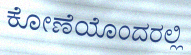
ಕೋಣೆಯೊಂದರಲ್ಲಿ